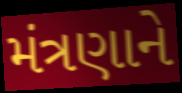
મંત્રણાને